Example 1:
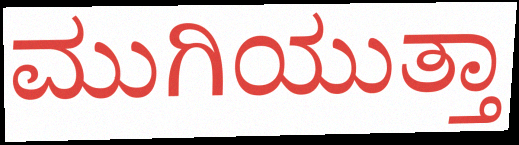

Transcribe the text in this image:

ಮುಗಿಯುತ್ತಾ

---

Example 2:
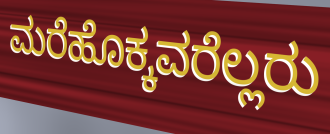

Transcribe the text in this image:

ಮರೆಹೊಕ್ಕವರೆಲ್ಲರು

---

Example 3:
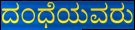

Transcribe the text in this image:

ದಂಧೆಯವರು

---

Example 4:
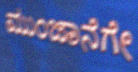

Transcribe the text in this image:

ಮುಂಜಾನೆಗೇ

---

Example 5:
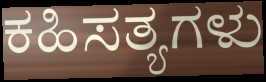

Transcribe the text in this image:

ಕಹಿಸತ್ಯಗಳು